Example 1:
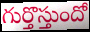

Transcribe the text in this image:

గుర్తొస్తుందో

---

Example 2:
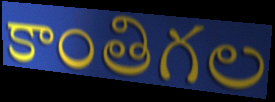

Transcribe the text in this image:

కాంతిగల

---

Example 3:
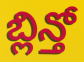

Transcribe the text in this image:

బ్లిన్తో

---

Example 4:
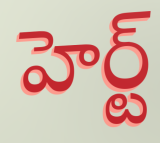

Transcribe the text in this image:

హెర్ట్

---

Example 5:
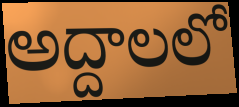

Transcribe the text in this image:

అద్దాలలో